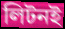
লিটনই